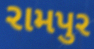
રામપુર